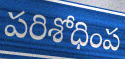
పరిశోధింప